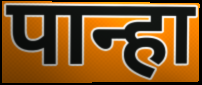
पान्हा